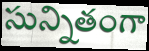
సున్నితంగా